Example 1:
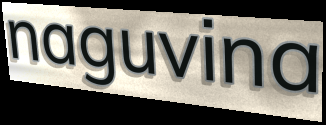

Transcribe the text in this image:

naguvina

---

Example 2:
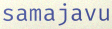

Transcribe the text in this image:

samajavu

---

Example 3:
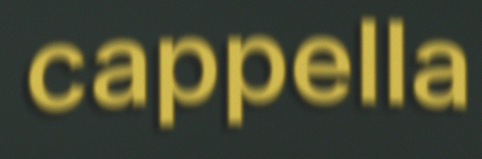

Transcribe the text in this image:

cappella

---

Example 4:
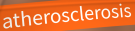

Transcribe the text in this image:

atherosclerosis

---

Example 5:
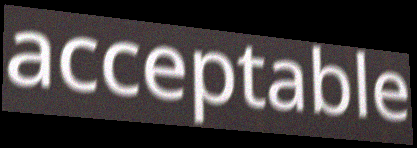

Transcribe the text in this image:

acceptable